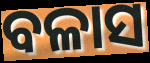
ବଳାସ